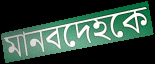
মানবদেহকে